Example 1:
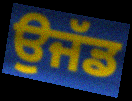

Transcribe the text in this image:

ਉਜੱਡ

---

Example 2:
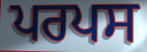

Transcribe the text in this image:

ਪਰਪਸ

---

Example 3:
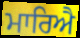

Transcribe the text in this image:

ਮਾਰਿਐ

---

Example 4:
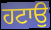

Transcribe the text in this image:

ਹਟਾਉ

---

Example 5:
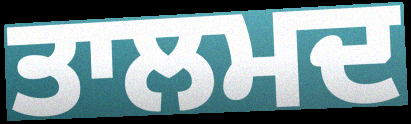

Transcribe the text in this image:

ਤਾਲਮਦ